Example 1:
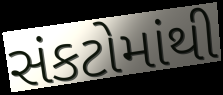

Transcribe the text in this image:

સંકટોમાંથી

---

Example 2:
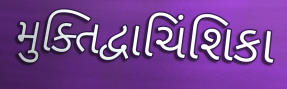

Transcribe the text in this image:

મુક્તિદ્વાચિંશિકા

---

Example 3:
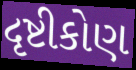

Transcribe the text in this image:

દૃષ્ટીકોણ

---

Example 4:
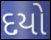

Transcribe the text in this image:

દયો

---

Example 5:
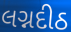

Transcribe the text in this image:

લગ્નદીઠ